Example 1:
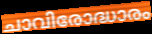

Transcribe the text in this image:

ചാവിരോദ്ധാരം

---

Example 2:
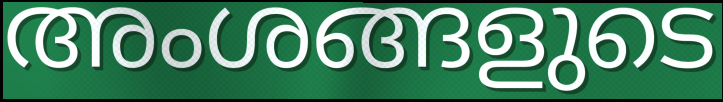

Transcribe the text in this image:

അംശങ്ങളുടെ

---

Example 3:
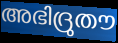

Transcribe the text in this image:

അഭിദ്രുതൗ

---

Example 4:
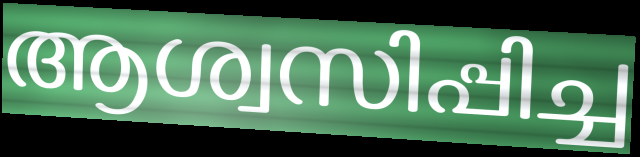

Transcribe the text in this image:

ആശ്വസിപ്പിച്ച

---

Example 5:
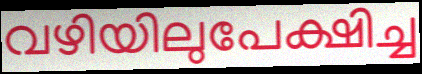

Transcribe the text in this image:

വഴിയിലുപേക്ഷിച്ച